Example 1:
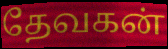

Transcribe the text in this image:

தேவகன்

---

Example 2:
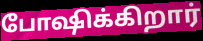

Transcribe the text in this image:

போஷிக்கிறார்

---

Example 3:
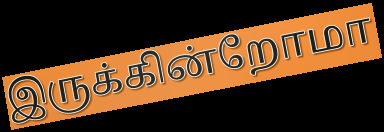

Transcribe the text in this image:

இருக்கின்றோமா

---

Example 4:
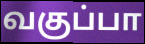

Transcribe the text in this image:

வகுப்பா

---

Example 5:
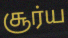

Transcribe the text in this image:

சூர்ய